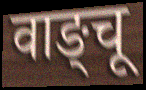
वाङ्चू